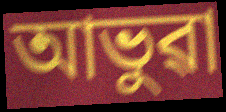
আভুৱা